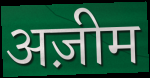
अज़ीम